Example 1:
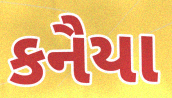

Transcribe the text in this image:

કનૈયા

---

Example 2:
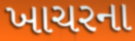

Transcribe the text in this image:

ખાચરના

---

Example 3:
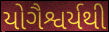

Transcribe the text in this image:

યોગૈશ્વર્યથી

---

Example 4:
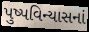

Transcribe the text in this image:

પુષ્પવિન્યાસનાં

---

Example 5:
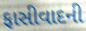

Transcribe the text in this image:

ફાસીવાદની